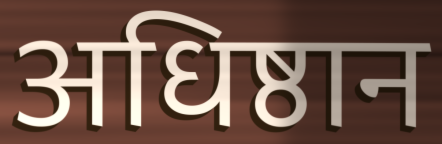
अधिष्ठान